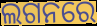
ଲଗନରେ